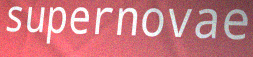
supernovae